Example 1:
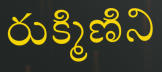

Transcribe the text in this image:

రుక్మిణిని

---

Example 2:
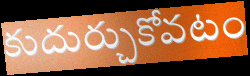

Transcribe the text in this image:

కుదుర్చుకోవటం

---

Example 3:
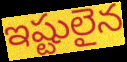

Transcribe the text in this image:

ఇష్టులైన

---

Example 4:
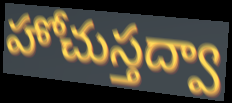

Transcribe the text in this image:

హోచుస్తద్వా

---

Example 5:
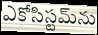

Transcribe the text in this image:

ఎకోసిస్టమ్‌ను